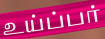
உய்ப்பர்